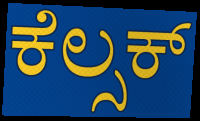
ಕೆಲ್ಸಕ್